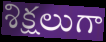
శిక్షలుగా